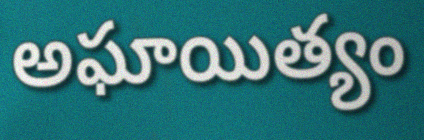
అఘాయిత్యం